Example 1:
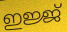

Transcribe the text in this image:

ഇജ്ജ്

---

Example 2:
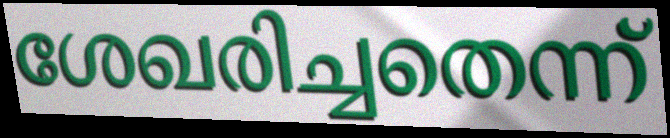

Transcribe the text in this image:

ശേഖരിച്ചതെന്ന്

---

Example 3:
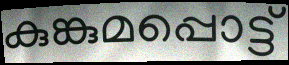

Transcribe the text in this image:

കുങ്കുമപ്പൊട്ട്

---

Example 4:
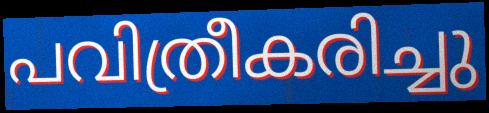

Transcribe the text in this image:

പവിത്രീകരിച്ചു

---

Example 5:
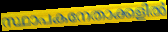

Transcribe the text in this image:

സ്ഥാപകനേതാക്കളിൽ